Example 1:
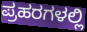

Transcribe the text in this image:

ಪ್ರಹರಗಳಲ್ಲಿ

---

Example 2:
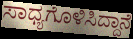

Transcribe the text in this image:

ಸಾಧ್ಯಗೊಳಿಸಿದ್ದಾನೆ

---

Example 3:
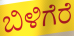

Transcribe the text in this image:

ಬಿಳಿಗೆರೆ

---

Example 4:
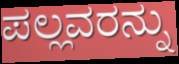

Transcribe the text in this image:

ಪಲ್ಲವರನ್ನು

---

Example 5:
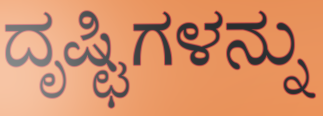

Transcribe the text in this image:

ದೃಷ್ಟಿಗಳನ್ನು